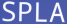
SPLA